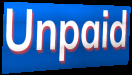
Unpaid